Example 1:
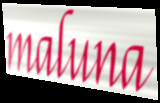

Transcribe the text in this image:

maluna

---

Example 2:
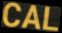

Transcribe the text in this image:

CAL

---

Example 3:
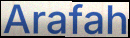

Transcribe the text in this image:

Arafah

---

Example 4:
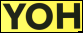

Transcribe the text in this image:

YOH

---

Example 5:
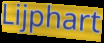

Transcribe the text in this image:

Lijphart